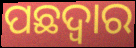
ପଛଦ୍ୱାର